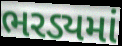
ભરડ્યમાં